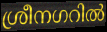
ശ്രീനഗറിൽ